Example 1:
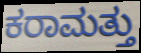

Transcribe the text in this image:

ಕರಾಮತ್ತು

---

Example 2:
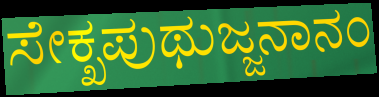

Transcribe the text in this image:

ಸೇಕ್ಖಪುಥುಜ್ಜನಾನಂ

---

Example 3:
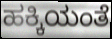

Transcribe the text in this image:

ಹಕ್ಕಿಯಂತೆ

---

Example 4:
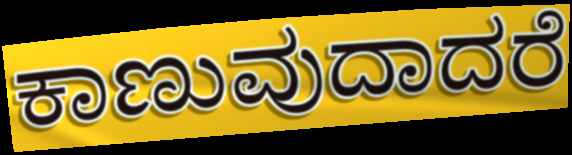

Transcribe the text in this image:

ಕಾಣುವುದಾದರೆ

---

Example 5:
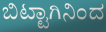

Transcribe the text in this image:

ಬಿಟ್ಟಾಗಿನಿಂದ